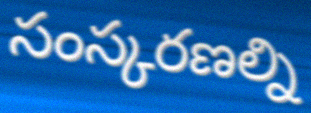
సంస్కరణల్ని